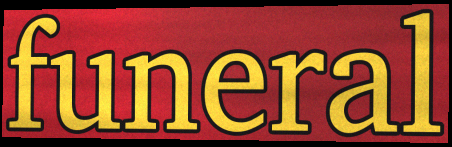
funeral